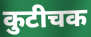
कुटीचक